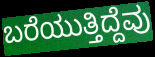
ಬರೆಯುತ್ತಿದ್ದೆವು